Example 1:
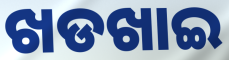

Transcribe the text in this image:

ଖଡଖାଇ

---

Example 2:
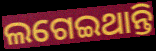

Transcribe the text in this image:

ଲଗେଇଥାନ୍ତି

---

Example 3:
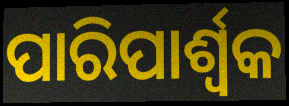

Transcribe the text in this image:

ପାରିପାର୍ଶ୍ଵକ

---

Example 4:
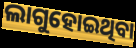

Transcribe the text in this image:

ଲାଗୁହୋଇଥିବା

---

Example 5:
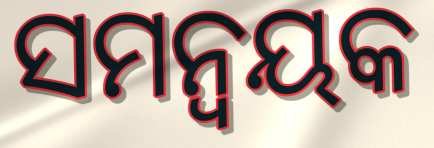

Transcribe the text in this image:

ସମନ୍ୱୟକ